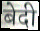
बेदी